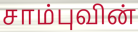
சாம்புவின்